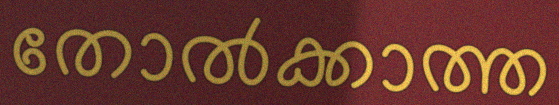
തോൽക്കാത്ത